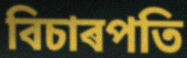
বিচাৰপতি